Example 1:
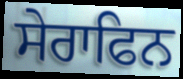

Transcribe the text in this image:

ਸੇਰਾਫਿਨ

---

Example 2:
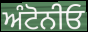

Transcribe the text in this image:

ਅੰਟੋਨੀਓ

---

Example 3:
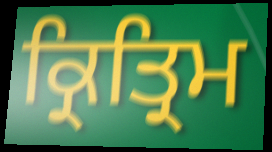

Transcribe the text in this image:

ਕ੍ਰਿਤ੍ਰਿਮ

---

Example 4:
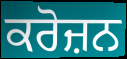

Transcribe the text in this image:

ਕਰੋਜ਼ਨ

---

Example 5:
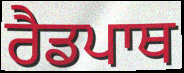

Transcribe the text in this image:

ਰੈਡਪਾਥ